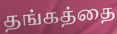
தங்கத்தை